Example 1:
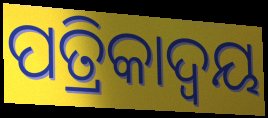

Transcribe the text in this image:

ପତ୍ରିକାଦ୍ୱୟ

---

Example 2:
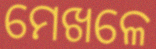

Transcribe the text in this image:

ମେଖଳେ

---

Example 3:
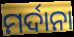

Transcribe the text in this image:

ମର୍ଦାନା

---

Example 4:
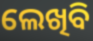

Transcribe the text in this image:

ଲେଖିବି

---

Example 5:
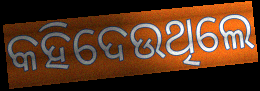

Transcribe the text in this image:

କହିଦେଉଥିଲେ